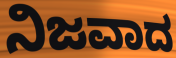
ನಿಜವಾದ